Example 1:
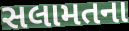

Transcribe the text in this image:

સલામતના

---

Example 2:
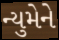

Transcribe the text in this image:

ન્યુમેને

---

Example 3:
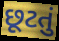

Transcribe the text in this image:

છૂટતું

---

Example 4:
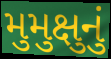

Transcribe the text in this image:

મુમુક્ષુનું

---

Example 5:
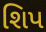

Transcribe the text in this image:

શિપ